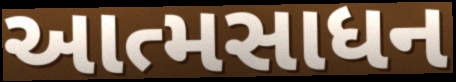
આત્મસાધન